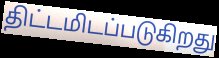
திட்டமிடப்படுகிறது